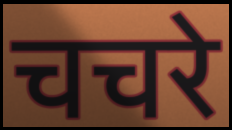
चचरे